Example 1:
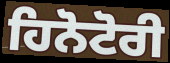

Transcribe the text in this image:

ਹਿਨੋਟੋਰੀ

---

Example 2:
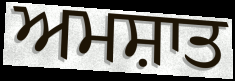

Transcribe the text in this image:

ਅਮਸ਼ਾਤ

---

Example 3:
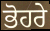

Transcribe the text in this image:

ਭੋਹਰੇ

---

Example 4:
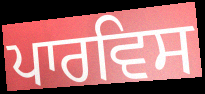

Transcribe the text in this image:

ਪਾਰਵਿਸ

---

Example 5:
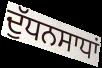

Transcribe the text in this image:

ਦੁੱਧਨਸਾਧਾਂ